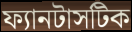
ফ্যানটাসটিক